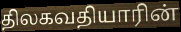
திலகவதியாரின்